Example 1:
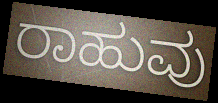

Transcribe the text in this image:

ರಾಹುವು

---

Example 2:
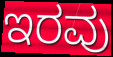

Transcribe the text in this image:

ಇರವು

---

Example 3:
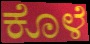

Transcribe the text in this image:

ಕೊಳೆ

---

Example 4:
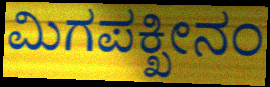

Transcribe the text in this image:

ಮಿಗಪಕ್ಖೀನಂ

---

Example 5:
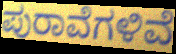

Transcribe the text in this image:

ಪುರಾವೆಗಳಿವೆ